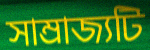
সাম্রাজ্যটি